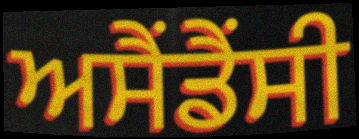
ਅਸੈਂਡੈਂਸੀ